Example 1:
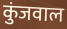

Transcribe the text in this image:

कुंजवाल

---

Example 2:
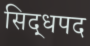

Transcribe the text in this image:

सिद्धपद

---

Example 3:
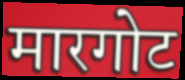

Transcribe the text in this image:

मारगोट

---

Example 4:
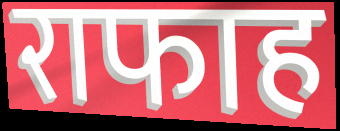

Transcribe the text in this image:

राफाह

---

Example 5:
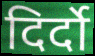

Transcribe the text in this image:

दिर्दो